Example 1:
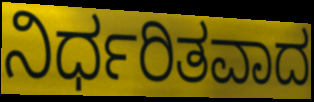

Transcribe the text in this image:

ನಿರ್ಧರಿತವಾದ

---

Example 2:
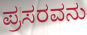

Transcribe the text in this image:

ಪ್ರಸರವನು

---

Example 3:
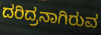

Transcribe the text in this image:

ದರಿದ್ರನಾಗಿರುವ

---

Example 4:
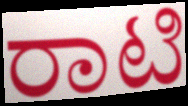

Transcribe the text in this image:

ರಾಟಿ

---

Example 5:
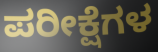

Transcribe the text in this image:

ಪರೀಕ್ಷೆಗಳ